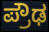
ಪ್ರೌಢ